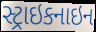
સ્ટ્રાઇકનાઇન